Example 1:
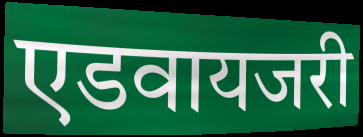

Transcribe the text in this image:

एडवायजरी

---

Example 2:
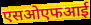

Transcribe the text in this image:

एसओएफआई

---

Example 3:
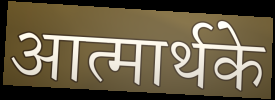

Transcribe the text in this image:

आत्मार्थके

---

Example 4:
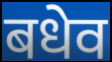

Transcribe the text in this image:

बधेव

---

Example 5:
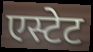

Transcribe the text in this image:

एस्टेट